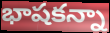
భాషకన్నా